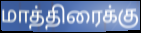
மாத்திரைக்கு